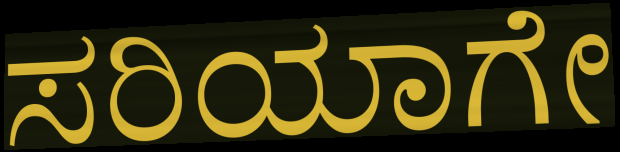
ಸರಿಯಾಗೇ